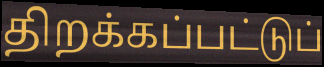
திறக்கப்பட்டுப்